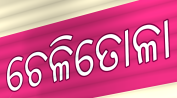
ଚେଳିତୋଳା